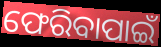
ଫେରିବାପାଇଁ